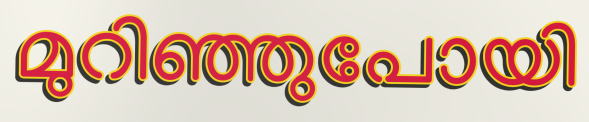
മുറിഞ്ഞുപോയി